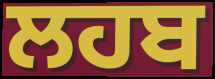
ਲਹਬ